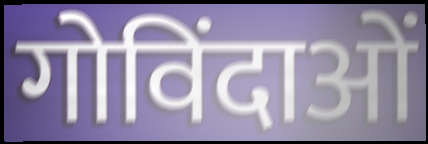
गोविंदाओं